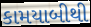
કામયાબીથી